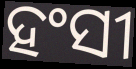
ହଂସୀ